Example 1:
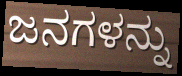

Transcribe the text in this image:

ಜನಗಳನ್ನು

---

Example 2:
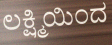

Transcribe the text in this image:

ಲಕ್ಷ್ಮಿಯಿಂದ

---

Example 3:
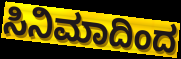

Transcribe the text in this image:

ಸಿನಿಮಾದಿಂದ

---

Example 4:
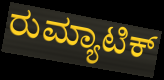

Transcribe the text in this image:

ರುಮ್ಯಾಟಿಕ್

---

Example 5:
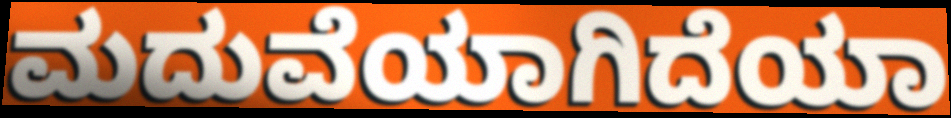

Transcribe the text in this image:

ಮದುವೆಯಾಗಿದೆಯಾ